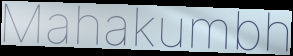
Mahakumbh